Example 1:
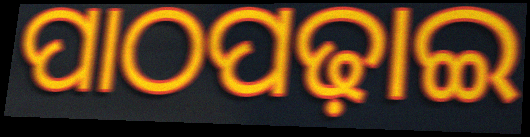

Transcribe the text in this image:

ପାଠପଢ଼ାଇ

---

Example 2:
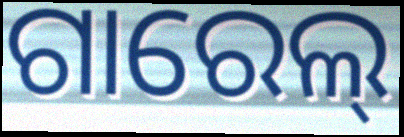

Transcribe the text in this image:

ଗାରେଲ୍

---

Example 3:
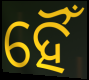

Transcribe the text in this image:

ହୈଁ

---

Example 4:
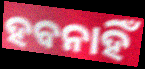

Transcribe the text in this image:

ହବନାହିଁ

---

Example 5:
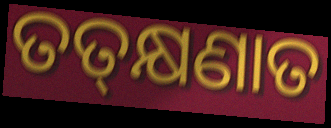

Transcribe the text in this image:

ତତ୍‌କ୍ଷଣାତ